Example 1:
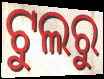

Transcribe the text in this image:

ଟୁଲରୁ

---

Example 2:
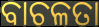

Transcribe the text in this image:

ବାଚଳତା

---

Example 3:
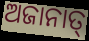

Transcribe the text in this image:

ଅଜାନାତ୍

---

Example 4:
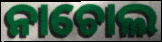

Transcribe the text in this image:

ନାଚୋଲ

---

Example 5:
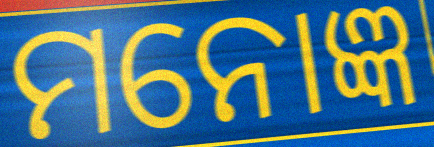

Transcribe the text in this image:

ମନୋଜ୍ଞ